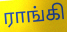
ராங்கி